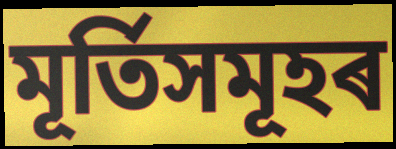
মূৰ্তিসমূহৰ